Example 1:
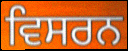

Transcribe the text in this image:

ਵਿਸਰਨ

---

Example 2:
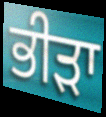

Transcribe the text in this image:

ਭੀੜਾ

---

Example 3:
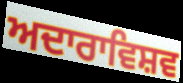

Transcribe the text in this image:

ਅਦਾਰਾਵਿਸ਼ਵ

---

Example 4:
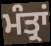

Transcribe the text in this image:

ਮੰਤ੍ਰਾਂ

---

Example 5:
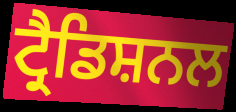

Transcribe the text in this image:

ਟ੍ਰੈਡਿਸ਼ਨਲ